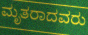
ಮೃತರಾದವರು